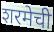
शरमेची